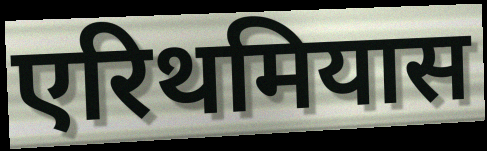
एरिथमियास